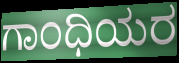
ಗಾಂಧಿಯರ